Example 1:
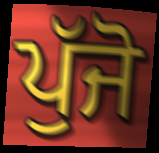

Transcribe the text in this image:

ਪੁੱਜੋ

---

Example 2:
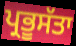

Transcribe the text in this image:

ਪ੍ਰਭੂਸੱਤਾ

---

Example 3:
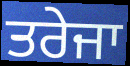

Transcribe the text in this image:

ਤਰੇਜਾ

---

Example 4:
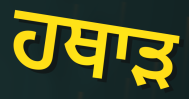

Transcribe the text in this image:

ਹਥਾੜ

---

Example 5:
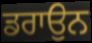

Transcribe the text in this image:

ਡਰਾਉਨ